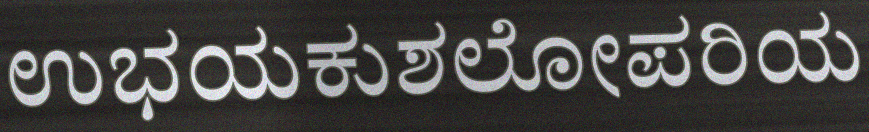
ಉಭಯಕುಶಲೋಪರಿಯ